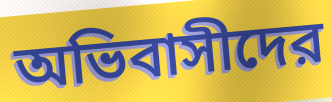
অভিবাসীদের